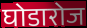
घोडारोज